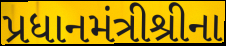
પ્રધાનમંત્રીશ્રીના